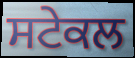
ਸਟੇਕਲ